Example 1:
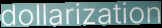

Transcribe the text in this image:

dollarization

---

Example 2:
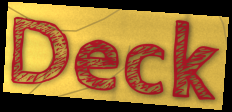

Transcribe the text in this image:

Deck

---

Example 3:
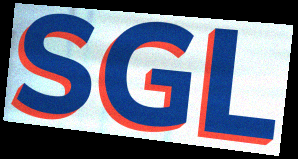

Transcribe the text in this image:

SGL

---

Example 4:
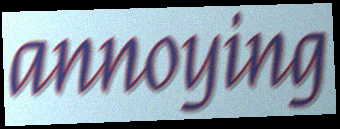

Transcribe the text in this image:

annoying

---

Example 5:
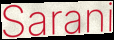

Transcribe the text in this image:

Sarani